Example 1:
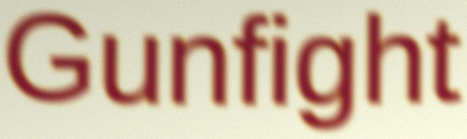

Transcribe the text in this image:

Gunfight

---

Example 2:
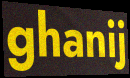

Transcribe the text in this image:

ghanij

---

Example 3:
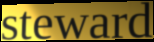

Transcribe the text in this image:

steward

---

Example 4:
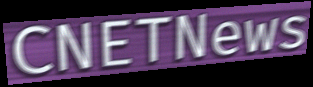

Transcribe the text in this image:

CNETNews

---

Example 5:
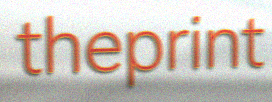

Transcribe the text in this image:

theprint